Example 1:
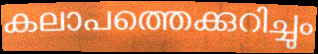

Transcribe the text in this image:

കലാപത്തെക്കുറിച്ചും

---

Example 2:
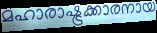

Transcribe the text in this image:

മഹാരാഷ്ട്രക്കാരനായ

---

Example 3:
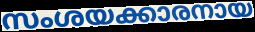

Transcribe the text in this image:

സംശയക്കാരനായ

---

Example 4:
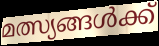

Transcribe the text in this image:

മത്സ്യങ്ങൾക്ക്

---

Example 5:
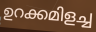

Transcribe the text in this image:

ഉറക്കമിളച്ച